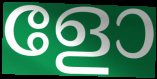
ളോ